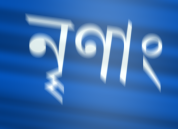
নৄণাং